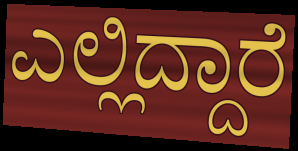
ಎಲ್ಲಿದ್ದಾರೆ